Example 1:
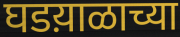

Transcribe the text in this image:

घडय़ाळाच्या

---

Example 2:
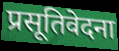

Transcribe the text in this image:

प्रसूतिवेदना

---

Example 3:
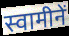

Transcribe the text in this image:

स्वामीनें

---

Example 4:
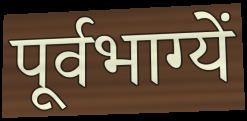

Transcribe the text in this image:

पूर्वभाग्यें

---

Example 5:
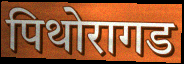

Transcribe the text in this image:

पिथोरागड